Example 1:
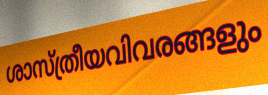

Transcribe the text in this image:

ശാസ്ത്രീയവിവരങ്ങളും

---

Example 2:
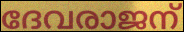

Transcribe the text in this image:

ദേവരാജന്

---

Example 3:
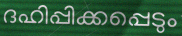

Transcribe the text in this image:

ദഹിപ്പിക്കപ്പെടും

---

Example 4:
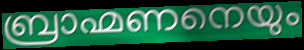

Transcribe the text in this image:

ബ്രാഹ്മണനെയും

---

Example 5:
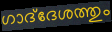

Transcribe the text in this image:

ഗാദ്‌ദേശത്തും